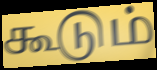
கூடும்